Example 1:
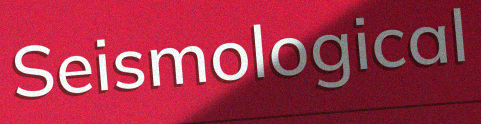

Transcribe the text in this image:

Seismological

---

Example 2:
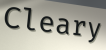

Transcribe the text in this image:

Cleary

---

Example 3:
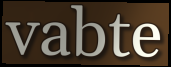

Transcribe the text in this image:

vabte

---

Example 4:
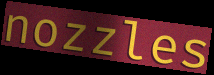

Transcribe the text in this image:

nozzles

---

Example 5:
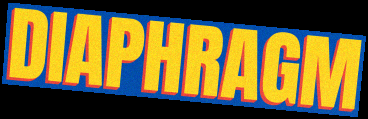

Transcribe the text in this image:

DIAPHRAGM